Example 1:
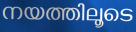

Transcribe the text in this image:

നയത്തിലൂടെ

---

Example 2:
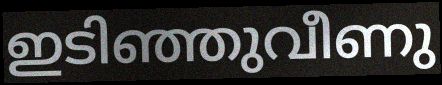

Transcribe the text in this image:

ഇടിഞ്ഞുവീണു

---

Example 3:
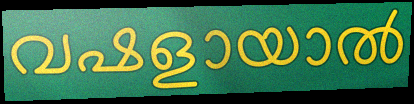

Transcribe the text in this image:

വഷളായാൽ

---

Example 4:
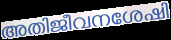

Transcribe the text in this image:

അതിജീവനശേഷി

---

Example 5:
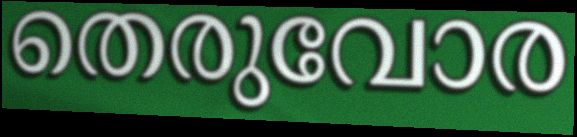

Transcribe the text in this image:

തെരുവോര